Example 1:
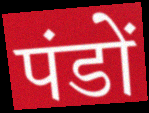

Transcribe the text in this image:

पंडों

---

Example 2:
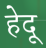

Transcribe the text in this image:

हेदू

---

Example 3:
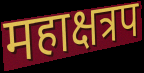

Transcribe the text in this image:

महाक्षत्रप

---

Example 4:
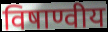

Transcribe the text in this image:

विषाण्वीय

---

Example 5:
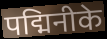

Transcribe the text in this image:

पद्मिनीके